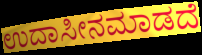
ಉದಾಸೀನಮಾಡದೆ